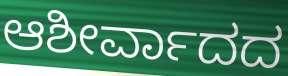
ಆಶೀರ್ವಾದದ